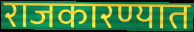
राजकारण्यात